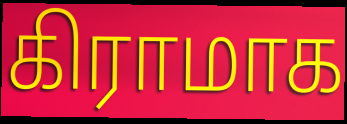
கிராமாக